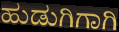
ಹುಡುಗಿಗಾಗಿ